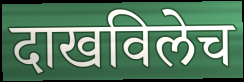
दाखविलेच